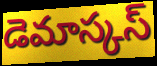
డెమాస్కస్